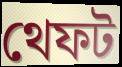
থেফট